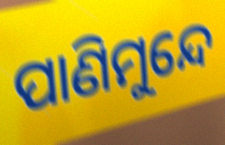
ପାଣିମୁନ୍ଦେ